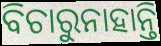
ବିଚାରୁନାହାନ୍ତି